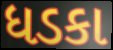
ધડકા